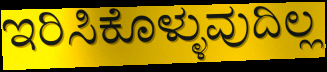
ಇರಿಸಿಕೊಳ್ಳುವುದಿಲ್ಲ